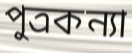
পুত্রকন্যা